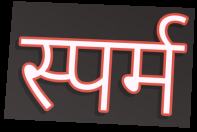
स्पर्म